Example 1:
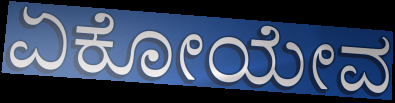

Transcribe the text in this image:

ಏಕೋಯೇವ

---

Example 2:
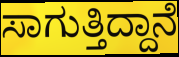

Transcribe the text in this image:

ಸಾಗುತ್ತಿದ್ದಾನೆ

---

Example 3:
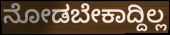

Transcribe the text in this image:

ನೋಡಬೇಕಾದ್ದಿಲ್ಲ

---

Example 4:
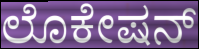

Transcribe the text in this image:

ಲೊಕೇಷನ್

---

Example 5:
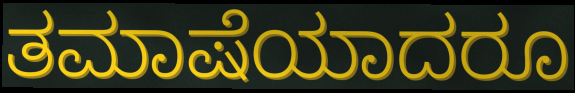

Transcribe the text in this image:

ತಮಾಷೆಯಾದರೂ